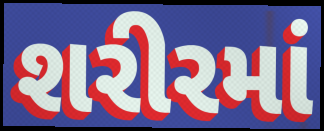
શરીરમાં